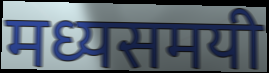
मध्यसमयी